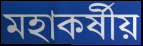
মহাকর্ষীয়